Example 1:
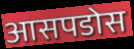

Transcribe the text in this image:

आसपडोस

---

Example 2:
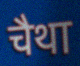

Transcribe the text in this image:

चैथा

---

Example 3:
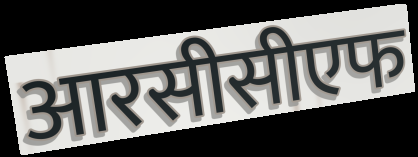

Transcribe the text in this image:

आरसीसीएफ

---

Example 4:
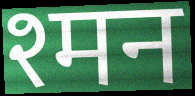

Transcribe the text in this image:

श्मन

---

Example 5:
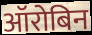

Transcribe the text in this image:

ऑरोबिन